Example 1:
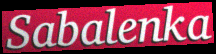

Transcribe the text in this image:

Sabalenka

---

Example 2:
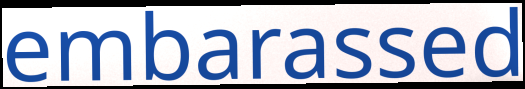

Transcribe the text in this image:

embarassed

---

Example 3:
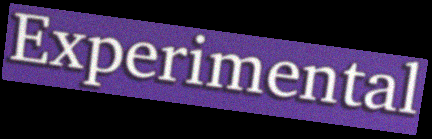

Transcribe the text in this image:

Experimental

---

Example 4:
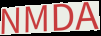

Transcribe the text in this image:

NMDA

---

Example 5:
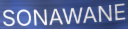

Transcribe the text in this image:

SONAWANE